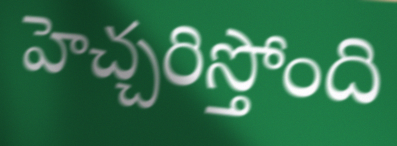
హెచ్చరిస్తోంది